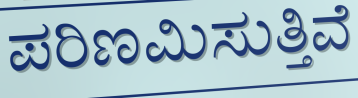
ಪರಿಣಮಿಸುತ್ತಿವೆ